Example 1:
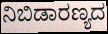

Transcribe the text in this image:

ನಿಬಿಡಾರಣ್ಯದ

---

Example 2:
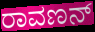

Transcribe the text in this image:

ರಾವಣನ್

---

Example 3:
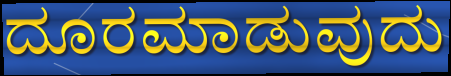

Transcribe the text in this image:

ದೂರಮಾಡುವುದು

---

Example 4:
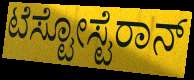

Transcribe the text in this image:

ಟೆಸ್ಟೋಸ್ಟೆರಾನ್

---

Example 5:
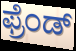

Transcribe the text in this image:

ಫ್ರೆಂಡ್